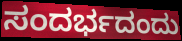
ಸಂದರ್ಭದಂದು